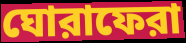
ঘোরাফেরা